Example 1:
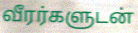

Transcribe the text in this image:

வீரர்களுடன்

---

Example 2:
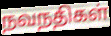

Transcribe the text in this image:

நவநதிகள்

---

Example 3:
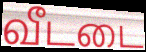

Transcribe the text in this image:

வீடடை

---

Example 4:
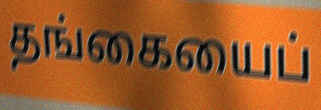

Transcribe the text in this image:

தங்கையைப்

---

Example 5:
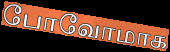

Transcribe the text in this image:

போவோமாக